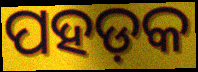
ପହଡ଼କ